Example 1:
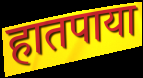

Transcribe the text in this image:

हातपाया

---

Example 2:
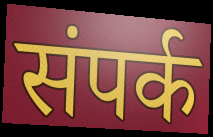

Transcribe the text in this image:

संपर्क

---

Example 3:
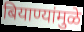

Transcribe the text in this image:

बियाण्यांमुळे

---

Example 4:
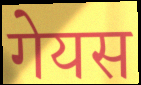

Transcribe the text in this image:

गेयस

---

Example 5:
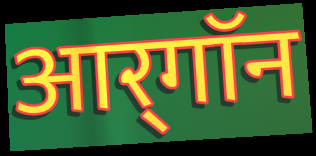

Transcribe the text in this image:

आर्‌गॉन